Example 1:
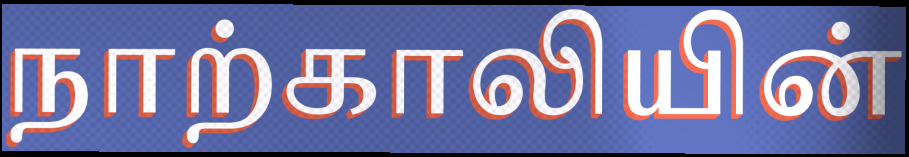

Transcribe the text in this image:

நாற்காலியின்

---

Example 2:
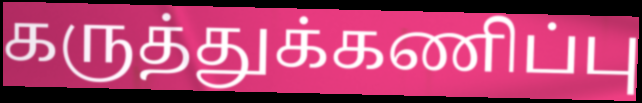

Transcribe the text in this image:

கருத்துக்கணிப்பு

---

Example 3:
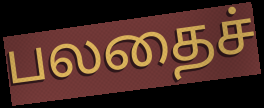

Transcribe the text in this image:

பலதைச்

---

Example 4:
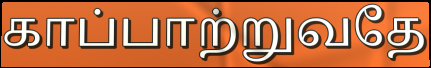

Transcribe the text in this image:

காப்பாற்றுவதே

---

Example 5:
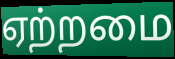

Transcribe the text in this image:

ஏற்றமை